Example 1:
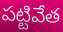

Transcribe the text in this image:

పట్టివేత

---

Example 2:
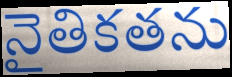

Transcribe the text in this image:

నైతికతను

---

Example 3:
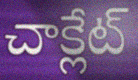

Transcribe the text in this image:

చాక్లేట్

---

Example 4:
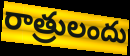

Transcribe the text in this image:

రాత్రులందు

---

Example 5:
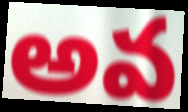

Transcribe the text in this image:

అవ